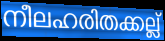
നീലഹരിതക്കല്ല്